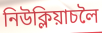
নিউক্লিয়াচলৈ